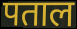
पताल